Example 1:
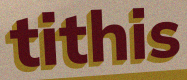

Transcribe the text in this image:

tithis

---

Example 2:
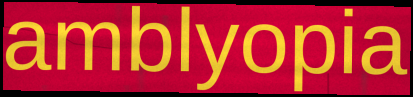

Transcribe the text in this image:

amblyopia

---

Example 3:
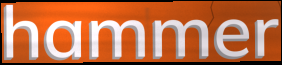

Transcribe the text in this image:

hammer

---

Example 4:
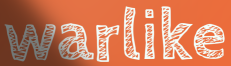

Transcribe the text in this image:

warlike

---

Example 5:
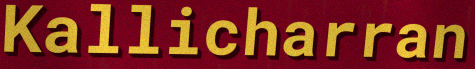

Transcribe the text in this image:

Kallicharran